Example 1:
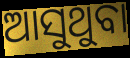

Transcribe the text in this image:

ଆସୁଥୁବା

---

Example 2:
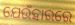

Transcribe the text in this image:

ଯେଉଁହାରରେ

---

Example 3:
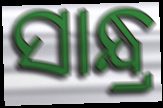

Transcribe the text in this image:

ସାନ୍ଧ୍ର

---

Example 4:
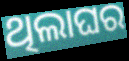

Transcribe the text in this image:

ଥିଲାଘର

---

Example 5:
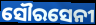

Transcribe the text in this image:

ସୌରସେନୀ